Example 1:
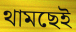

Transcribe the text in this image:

থামছেই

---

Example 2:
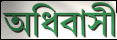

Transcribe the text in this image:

অধিবাসী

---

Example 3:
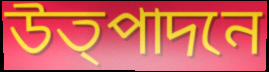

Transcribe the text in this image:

উত্পাদনে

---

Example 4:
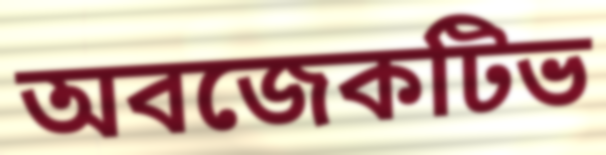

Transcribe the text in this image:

অবজেকটিভ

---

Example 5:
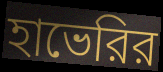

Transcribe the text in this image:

হাভেরির